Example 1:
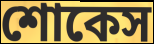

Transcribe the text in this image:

শোকেস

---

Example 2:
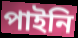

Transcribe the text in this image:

পাইনি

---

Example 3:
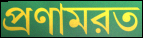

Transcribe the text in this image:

প্রণামরত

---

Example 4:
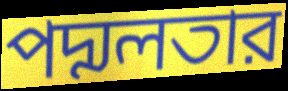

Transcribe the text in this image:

পদ্মলতার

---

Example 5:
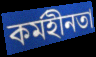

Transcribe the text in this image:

কর্মহীনতা